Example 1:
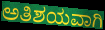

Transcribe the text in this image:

ಅತಿಶಯವಾಗಿ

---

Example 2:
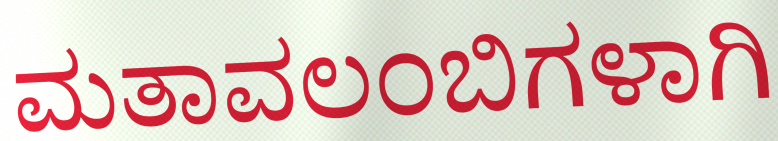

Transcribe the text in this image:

ಮತಾವಲಂಬಿಗಳಾಗಿ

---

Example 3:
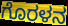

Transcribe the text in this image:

ಗೊರಳನ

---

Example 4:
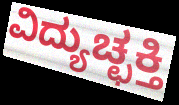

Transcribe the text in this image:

ವಿದ್ಯುಚ್ಛಕ್ತಿ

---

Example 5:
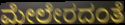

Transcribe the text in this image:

ಮೇಲೇರದಂತೆ